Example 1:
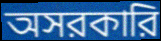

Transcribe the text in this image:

অসরকারি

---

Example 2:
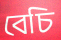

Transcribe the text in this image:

বেচি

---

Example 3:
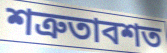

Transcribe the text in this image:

শত্রুতাবশত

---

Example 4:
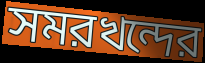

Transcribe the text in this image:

সমরখন্দের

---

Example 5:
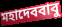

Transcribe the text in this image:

মহাদেববাবু